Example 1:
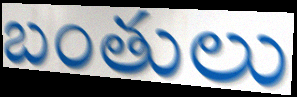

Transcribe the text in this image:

బంతులు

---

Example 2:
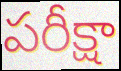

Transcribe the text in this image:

పరీక్షా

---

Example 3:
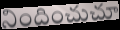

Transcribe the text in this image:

నిందించుచూ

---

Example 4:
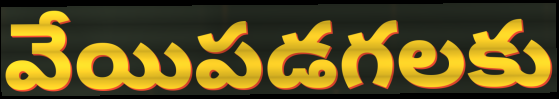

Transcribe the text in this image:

వేయిపడగలకు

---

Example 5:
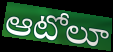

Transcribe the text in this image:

ఆటోలూ